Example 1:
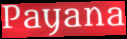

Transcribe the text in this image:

Payana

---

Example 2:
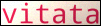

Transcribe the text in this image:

vitata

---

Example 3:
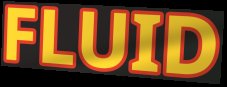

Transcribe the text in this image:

FLUID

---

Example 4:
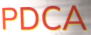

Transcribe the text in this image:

PDCA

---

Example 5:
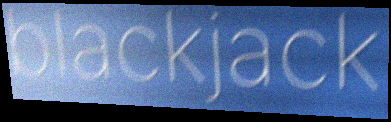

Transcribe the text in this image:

blackjack